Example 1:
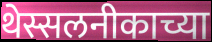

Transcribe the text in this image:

थेस्सलनीकाच्या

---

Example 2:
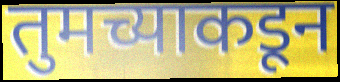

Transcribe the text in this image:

तुमच्याकडून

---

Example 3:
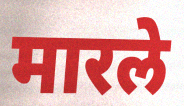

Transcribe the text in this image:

मारले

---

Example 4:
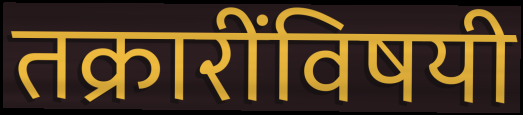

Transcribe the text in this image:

तक्रारींविषयी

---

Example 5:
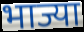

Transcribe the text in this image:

भाज्या